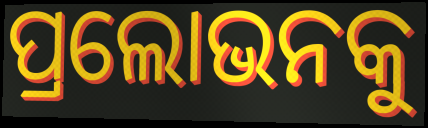
ପ୍ରଲୋଭନକୁ